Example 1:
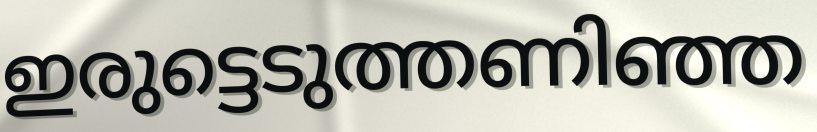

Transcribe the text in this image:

ഇരുട്ടെടുത്തണിഞ്ഞ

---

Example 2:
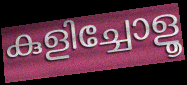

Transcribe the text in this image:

കുളിച്ചോളൂ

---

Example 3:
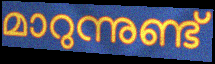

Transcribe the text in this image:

മാറുന്നുണ്ട്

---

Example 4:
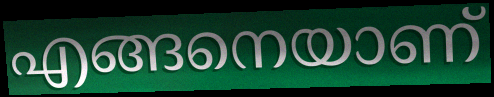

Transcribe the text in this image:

എങ്ങനെയാണ്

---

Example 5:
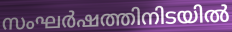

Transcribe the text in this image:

സംഘർഷത്തിനിടയിൽ